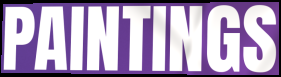
PAINTINGS